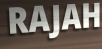
RAJAH